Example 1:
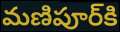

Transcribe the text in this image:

మణిపూర్‌కి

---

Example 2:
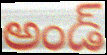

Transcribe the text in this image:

అండ్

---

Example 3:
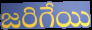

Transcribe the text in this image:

జరిగేయి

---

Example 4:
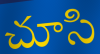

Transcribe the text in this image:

చూసి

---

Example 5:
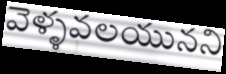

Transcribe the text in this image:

వెళ్ళవలయునని